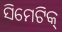
ସିମେଟିକ୍